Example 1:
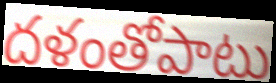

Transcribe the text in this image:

దళంతోపాటు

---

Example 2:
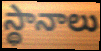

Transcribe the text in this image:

స్థానాలు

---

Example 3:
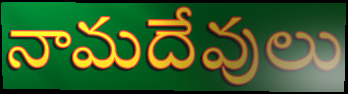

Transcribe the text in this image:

నామదేవులు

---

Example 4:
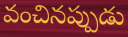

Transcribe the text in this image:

వంచినప్పుడు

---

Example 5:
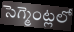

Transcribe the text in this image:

సెగ్మెంట్లలో